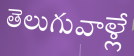
తెలుగువాళ్లే